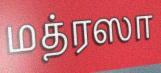
மத்ரஸா